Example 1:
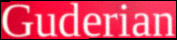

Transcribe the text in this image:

Guderian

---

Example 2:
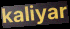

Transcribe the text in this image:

kaliyar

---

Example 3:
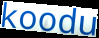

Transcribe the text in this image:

koodu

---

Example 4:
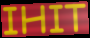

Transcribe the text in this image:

IHIT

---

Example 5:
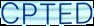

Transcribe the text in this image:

CPTED